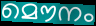
മൌനം